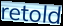
retold